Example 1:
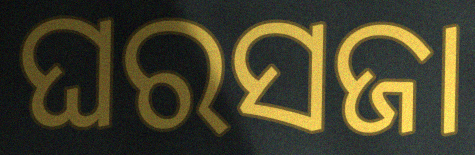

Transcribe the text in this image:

ଘରସଜା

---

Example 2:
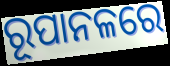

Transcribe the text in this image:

ରୂପାନଳରେ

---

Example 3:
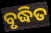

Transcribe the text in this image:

ବୃଦ୍ଧିତ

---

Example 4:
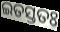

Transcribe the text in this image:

ଇତସ୍ତତଃ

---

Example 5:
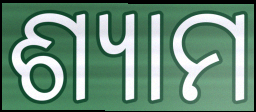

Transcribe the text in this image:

ଶ୍ୟାମ